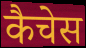
कैचेस